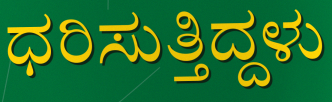
ಧರಿಸುತ್ತಿದ್ದಳು